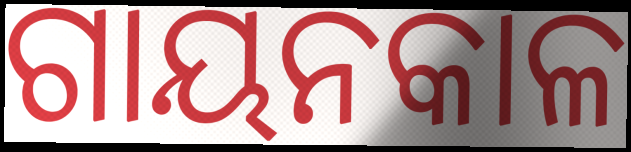
ଗାୟନକାଳ